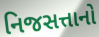
નિજસત્તાનો